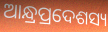
ଆନ୍ଧ୍ରପ୍ରଦେଶସ୍ୟ